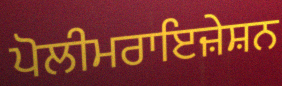
ਪੋਲੀਮਰਾਇਜ਼ੇਸ਼ਨ